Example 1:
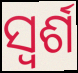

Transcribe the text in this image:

ସ୍ୱର୍ଶ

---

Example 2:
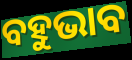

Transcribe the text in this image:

ବହୁଭାବ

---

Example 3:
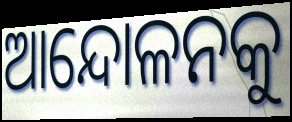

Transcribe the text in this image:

ଆନ୍ଦୋଳନକୁ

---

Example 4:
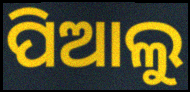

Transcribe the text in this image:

ପିଆଲୁ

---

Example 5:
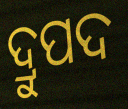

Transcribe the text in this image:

ଦ୍ରୁପଦ